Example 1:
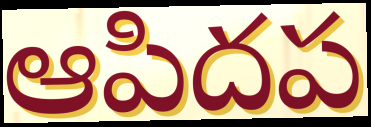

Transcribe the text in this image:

ఆపిదప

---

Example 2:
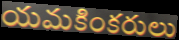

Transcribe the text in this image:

యమకింకరులు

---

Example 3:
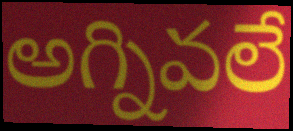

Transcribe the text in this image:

అగ్నివలే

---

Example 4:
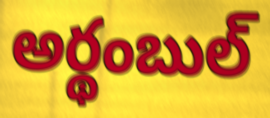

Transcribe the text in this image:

అర్థంబుల్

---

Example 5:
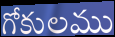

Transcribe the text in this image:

గోకులము